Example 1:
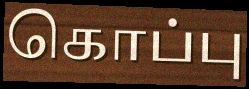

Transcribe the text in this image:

கொப்பு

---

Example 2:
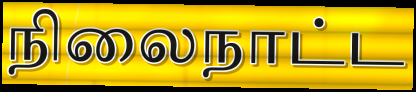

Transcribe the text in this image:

நிலைநாட்ட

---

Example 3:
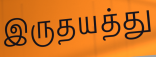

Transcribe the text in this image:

இருதயத்து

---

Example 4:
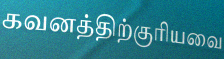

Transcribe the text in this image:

கவனத்திற்குரியவை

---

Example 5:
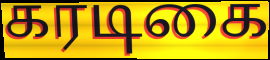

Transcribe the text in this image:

கரடிகை